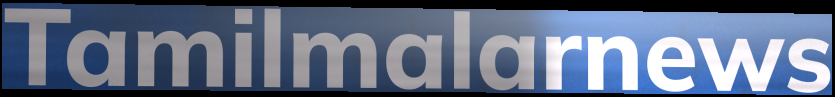
Tamilmalarnews